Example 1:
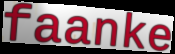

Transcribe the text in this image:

faanke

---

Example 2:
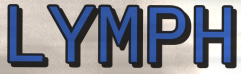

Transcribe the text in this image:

LYMPH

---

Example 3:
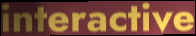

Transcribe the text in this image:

interactive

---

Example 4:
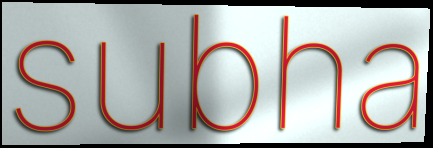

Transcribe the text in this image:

subha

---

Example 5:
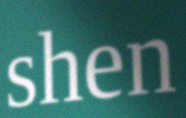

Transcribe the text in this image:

shen